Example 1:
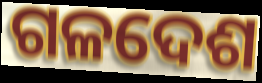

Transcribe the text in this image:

ଗଳଦେଶ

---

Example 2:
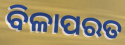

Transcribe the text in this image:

ବିଳାପରତ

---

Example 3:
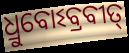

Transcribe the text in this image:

ଧ୍ରୁବୋଽବ୍ରବୀତ୍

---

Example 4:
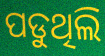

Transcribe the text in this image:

ପଡୁଥିଲି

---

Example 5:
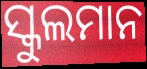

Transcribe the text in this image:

ସ୍କୁଲମାନ